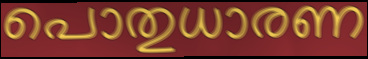
പൊതുധാരണ